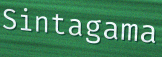
Sintagama